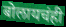
बोलायचंही